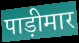
पाड़ीमार